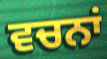
ਵਚਨਾਂ